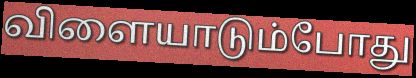
விளையாடும்போது